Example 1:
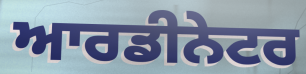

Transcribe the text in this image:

ਆਰਡੀਨੇਟਰ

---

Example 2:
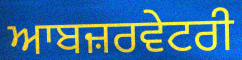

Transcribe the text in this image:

ਆਬਜ਼ਰਵੇਟਰੀ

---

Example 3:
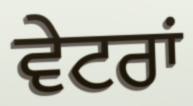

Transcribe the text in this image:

ਵੇਟਰਾਂ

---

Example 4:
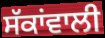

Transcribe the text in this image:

ਸੱਕਾਂਵਾਲੀ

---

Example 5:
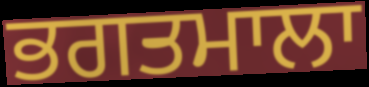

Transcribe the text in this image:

ਭਗਤਮਾਲਾ